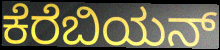
ಕೆರೆಬಿಯನ್